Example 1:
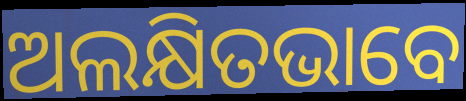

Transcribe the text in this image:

ଅଲକ୍ଷିତଭାବେ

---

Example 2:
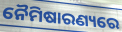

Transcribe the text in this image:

ନୈମିଷାରଣ୍ୟରେ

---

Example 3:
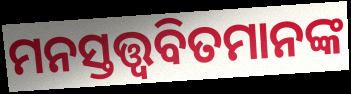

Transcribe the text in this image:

ମନସ୍ତତ୍ତ୍ୱବିତମାନଙ୍କ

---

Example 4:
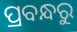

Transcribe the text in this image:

ପ୍ରବନ୍ଧରୁ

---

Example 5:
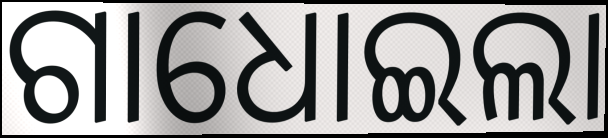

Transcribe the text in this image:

ଗାଧୋଇଲା